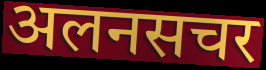
अलनसचर